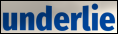
underlie